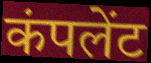
कंपलेंट